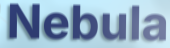
Nebula